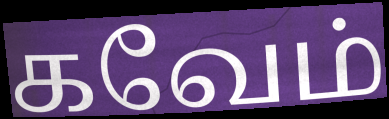
கவேம்